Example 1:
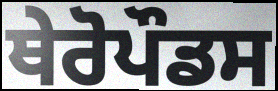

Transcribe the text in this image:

ਥੇਰੋਪੌਡਸ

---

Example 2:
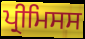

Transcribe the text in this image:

ਪ੍ਰੀਮਿਸਸ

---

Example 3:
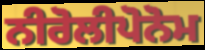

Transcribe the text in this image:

ਨੀਰੋਲੀਪੋਨੋਮ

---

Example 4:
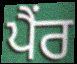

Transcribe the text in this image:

ਪੈਂਰ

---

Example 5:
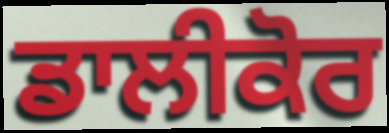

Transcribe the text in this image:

ਡਾਲੀਕੋਰ